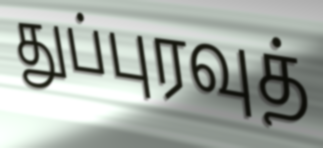
துப்புரவுத்